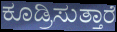
ಕೂಡ್ರಿಸುತ್ತಾರೆ